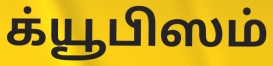
க்யூபிஸம்